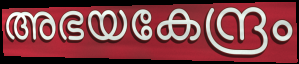
അഭയകേന്ദ്രം